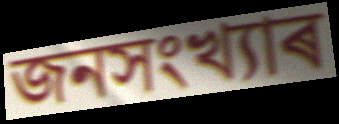
জনসংখ্যাৰ